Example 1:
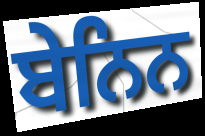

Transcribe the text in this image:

ਬੇਨਿਨ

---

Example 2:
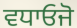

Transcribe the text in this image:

ਵਧਾਓਜੋ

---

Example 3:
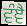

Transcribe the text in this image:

ਵੰਞੈ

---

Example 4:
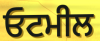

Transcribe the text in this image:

ਓਟਮੀਲ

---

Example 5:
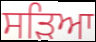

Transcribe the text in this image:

ਸੜਿਆ